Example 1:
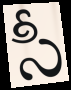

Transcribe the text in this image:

సీ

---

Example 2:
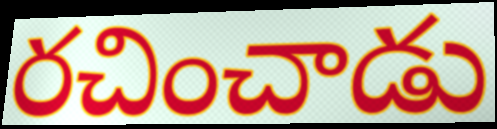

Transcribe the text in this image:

రచించాడు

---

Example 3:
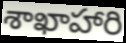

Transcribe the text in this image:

శాఖాహారి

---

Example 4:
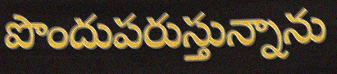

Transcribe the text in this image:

పొందుపరుస్తున్నాను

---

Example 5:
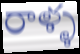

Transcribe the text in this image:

రాళ్ళ